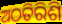
ଅଠତିରିଶି